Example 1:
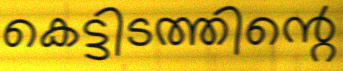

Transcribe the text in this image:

കെട്ടിടത്തിന്റെ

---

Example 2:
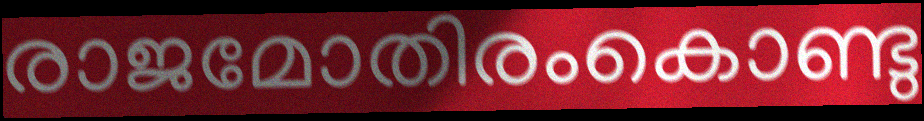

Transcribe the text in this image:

രാജമോതിരംകൊണ്ടു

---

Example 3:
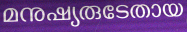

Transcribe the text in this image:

മനുഷ്യരുടേതായ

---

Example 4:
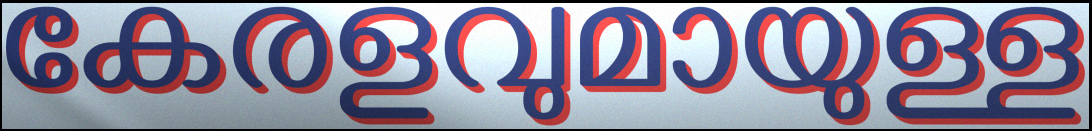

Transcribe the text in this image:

കേരളവുമായുള്ള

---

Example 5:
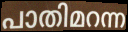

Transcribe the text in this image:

പാതിമറന്ന